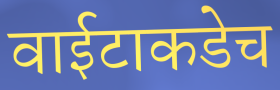
वाईटाकडेच